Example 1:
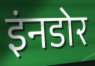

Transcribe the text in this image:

इंनडोर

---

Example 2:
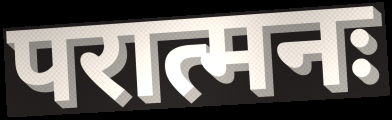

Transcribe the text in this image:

परात्मनः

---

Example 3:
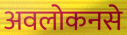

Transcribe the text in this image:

अवलोकनसे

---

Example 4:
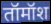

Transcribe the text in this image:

तॉमॉश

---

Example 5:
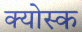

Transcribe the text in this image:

क्योस्क